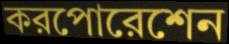
করপোরেশেন